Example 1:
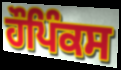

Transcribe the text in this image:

ਹੌਪਿੰਕਸ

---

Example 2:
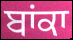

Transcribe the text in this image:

ਬਾਂਕਾ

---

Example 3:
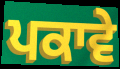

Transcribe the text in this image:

ਪਕਾਵੇ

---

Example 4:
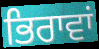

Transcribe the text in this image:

ਭਿਰਾਵਾਂ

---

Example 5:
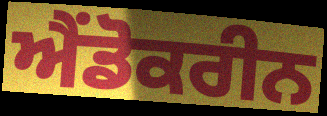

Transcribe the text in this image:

ਐਂਡੋਕਰੀਨ